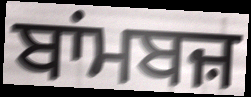
ਬਾਂਮਬਜ਼